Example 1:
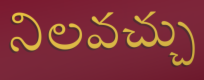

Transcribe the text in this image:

నిలవచ్చు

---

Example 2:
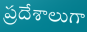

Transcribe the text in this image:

ప్రదేశాలుగా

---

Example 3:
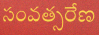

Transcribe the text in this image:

సంవత్సరేణ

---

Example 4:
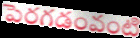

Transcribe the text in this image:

పెరగడంవంటి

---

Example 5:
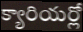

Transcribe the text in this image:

క్యారియర్లో